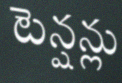
టెన్షన్లు